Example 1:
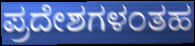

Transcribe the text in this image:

ಪ್ರದೇಶಗಳಂತಹ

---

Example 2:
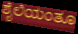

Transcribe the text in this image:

ಶೈಲಿಯಂತೂ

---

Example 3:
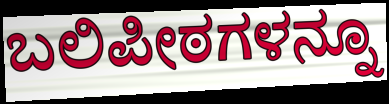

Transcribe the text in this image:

ಬಲಿಪೀಠಗಳನ್ನೂ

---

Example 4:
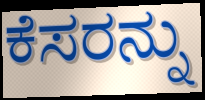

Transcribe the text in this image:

ಕೆಸರನ್ನು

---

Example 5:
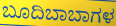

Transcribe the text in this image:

ಬೂದಿಬಾಬಾಗಳ